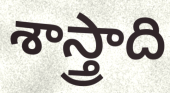
శాస్త్రాది